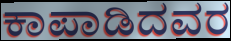
ಕಾಪಾಡಿದವರ